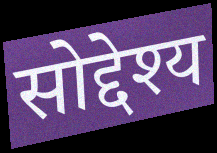
सोद्देश्य